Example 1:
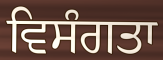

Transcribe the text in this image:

ਵਿਸੰਗਤਾ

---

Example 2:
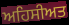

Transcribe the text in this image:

ਅਹਿਸੀਅਤ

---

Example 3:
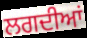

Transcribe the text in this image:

ਲਗਦੀਆਂ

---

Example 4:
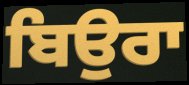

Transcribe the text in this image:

ਬਿਉਰਾ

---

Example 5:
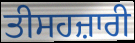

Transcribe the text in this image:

ਤੀਸਹਜ਼ਾਰੀ